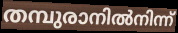
തമ്പുരാനിൽനിന്ന്